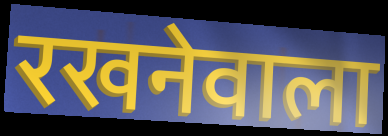
रखनेवाला